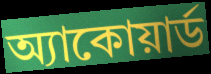
অ্যাকোয়ার্ড